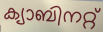
ക്യാബിനറ്റ്